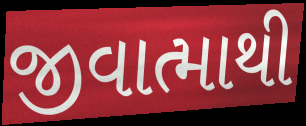
જીવાત્માથી